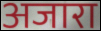
अजारा